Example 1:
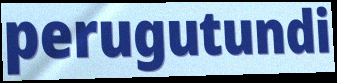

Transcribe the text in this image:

perugutundi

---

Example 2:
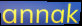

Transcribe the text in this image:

annak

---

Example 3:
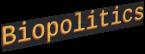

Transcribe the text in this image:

Biopolitics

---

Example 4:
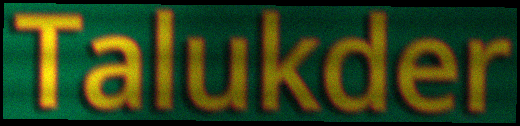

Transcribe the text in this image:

Talukder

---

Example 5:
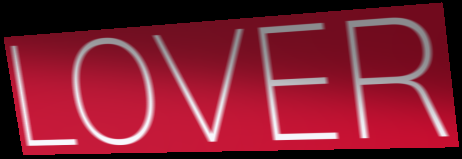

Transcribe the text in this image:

LOVER